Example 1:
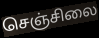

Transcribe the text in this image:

செஞ்சிலை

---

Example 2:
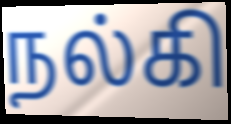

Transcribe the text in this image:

நல்கி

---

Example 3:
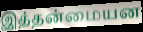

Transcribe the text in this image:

இத்தன்மையன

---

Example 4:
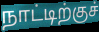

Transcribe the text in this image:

நாட்டிற்குச்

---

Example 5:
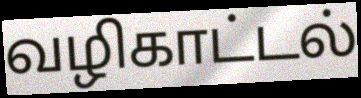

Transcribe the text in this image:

வழிகாட்டல்